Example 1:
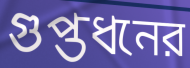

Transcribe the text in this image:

গুপ্তধনের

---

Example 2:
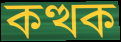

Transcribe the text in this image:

কত্থক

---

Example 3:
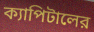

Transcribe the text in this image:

ক্যাপিটালের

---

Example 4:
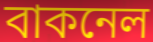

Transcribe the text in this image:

বাকনেল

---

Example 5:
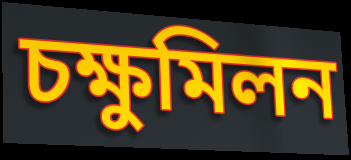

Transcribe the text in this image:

চক্ষুমিলন